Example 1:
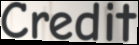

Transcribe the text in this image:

Credit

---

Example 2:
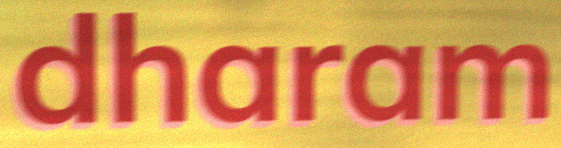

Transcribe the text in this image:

dharam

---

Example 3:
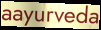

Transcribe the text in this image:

aayurveda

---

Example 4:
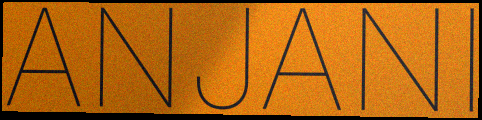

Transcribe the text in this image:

ANJANI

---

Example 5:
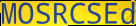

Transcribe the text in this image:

MOSRCSEd